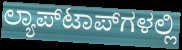
ಲ್ಯಾಪ್‌ಟಾಪ್‌ಗಳಲ್ಲಿ